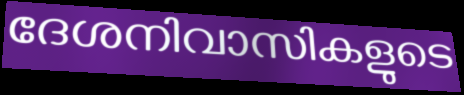
ദേശനിവാസികളുടെ